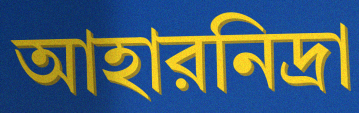
আহারনিদ্রা